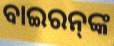
ବାଇରନ୍‌ଙ୍କ